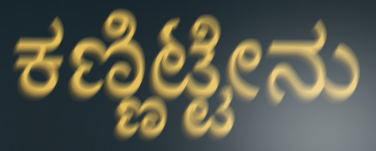
ಕಣ್ಣಿಟ್ಟೇನು